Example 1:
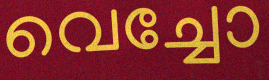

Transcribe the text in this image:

വെച്ചോ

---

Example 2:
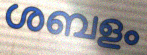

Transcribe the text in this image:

ശബളം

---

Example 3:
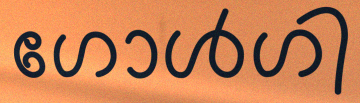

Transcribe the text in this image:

ഗോൾഗി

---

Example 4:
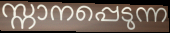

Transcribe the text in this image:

സ്നാനപ്പെടുന്ന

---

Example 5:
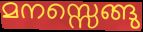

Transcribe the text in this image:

മനസ്സെങ്ങു